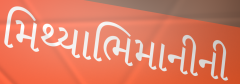
મિથ્યાભિમાનીની